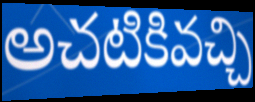
అచటికివచ్చి